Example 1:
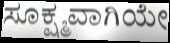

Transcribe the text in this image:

ಸೂಕ್ಷ್ಮವಾಗಿಯೇ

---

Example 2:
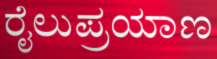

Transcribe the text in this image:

ರೈಲುಪ್ರಯಾಣ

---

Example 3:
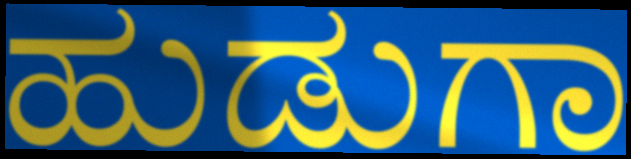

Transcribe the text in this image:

ಹುಡುಗಾ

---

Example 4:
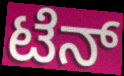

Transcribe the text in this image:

ಟೆನ್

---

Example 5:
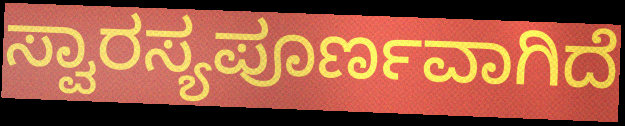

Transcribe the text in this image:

ಸ್ವಾರಸ್ಯಪೂರ್ಣವಾಗಿದೆ